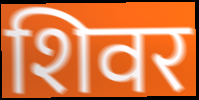
शिवर